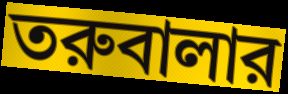
তরুবালার